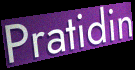
Pratidin